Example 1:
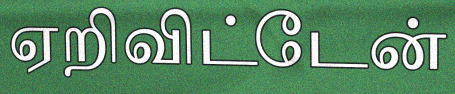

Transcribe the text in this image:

ஏறிவிட்டேன்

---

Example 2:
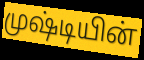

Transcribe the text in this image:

முஷ்டியின்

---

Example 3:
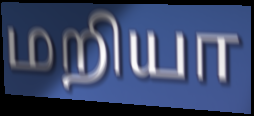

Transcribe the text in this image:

மறியா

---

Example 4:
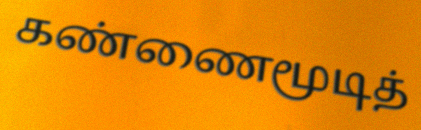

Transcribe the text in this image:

கண்ணைமூடித்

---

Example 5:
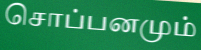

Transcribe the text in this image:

சொப்பனமும்